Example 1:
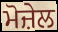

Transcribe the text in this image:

ਮੋਜ਼ੇਲ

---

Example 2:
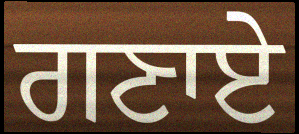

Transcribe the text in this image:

ਗਣਾਏ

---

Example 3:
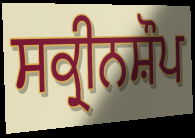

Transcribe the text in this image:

ਸਕ੍ਰੀਨਸ਼ੌਪ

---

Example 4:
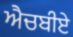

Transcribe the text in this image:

ਐਚਬੀਏ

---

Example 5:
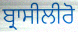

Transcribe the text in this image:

ਬ੍ਰਾਸੀਲੀਰੋ